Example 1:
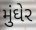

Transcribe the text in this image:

મુંઘેર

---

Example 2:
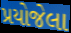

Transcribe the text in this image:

પ્રયોજેલા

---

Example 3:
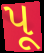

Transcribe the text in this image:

પૂ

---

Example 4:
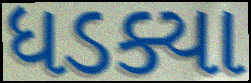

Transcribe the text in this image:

ધડક્યા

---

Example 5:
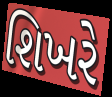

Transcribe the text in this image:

શિખરે